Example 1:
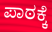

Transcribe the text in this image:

ಪಾಠಕ್ಕೆ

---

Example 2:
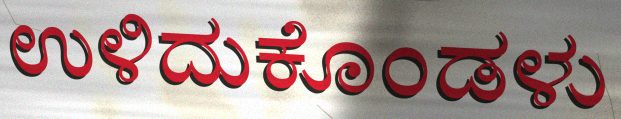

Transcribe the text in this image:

ಉಳಿದುಕೊಂಡಳು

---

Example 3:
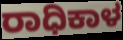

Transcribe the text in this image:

ರಾಧಿಕಾಳ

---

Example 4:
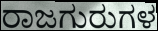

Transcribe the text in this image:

ರಾಜಗುರುಗಳ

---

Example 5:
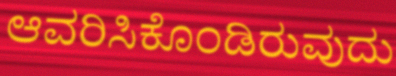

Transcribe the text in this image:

ಆವರಿಸಿಕೊಂಡಿರುವುದು